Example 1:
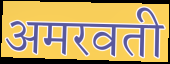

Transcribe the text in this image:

अमरवती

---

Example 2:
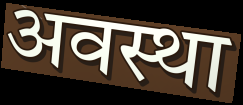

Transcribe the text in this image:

अवस्‍था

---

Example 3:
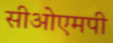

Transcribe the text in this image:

सीओएमपी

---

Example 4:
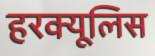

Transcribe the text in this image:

हरक्यूलिस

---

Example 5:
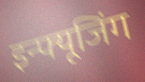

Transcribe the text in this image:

इन्फ्यूजिंग